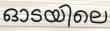
ഓടയിലെ